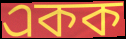
একক